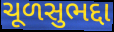
ચૂળસુભદ્દા